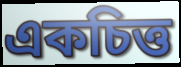
একচিত্ত